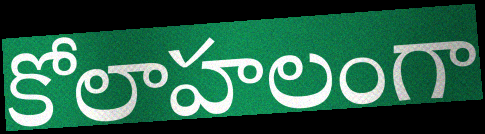
కోలాహలంగా